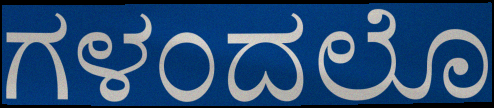
ಗಳಂದಲೊ